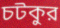
চটকুর